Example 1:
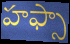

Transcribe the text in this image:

హఫ్సా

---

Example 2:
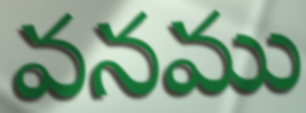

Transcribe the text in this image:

వనము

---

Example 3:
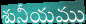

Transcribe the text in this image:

శునీయము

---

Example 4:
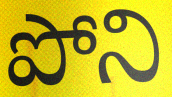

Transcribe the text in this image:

పోని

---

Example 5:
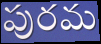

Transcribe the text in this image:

పురమ